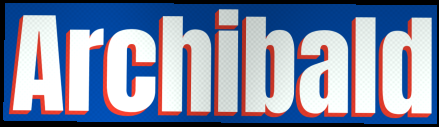
Archibald